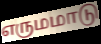
எருமமாடு